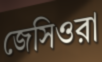
জেসিওরা